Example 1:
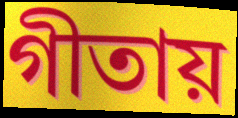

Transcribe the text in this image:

গীতায়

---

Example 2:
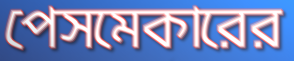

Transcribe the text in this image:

পেসমেকারের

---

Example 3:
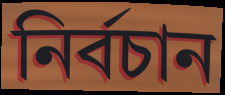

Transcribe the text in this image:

নির্বচান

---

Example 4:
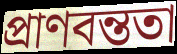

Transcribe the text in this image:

প্রাণবন্ততা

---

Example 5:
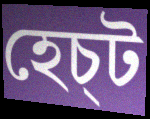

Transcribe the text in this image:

হেচ্ট